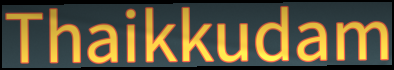
Thaikkudam